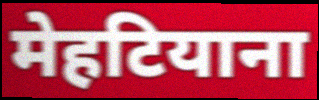
मेहटियाना